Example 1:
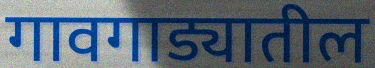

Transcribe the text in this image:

गावगाड्यातील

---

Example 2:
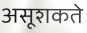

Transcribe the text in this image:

असूशकते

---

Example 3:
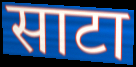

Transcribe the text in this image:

साटा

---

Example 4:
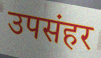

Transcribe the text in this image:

उपसंहर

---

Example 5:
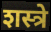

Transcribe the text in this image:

शस्त्रे